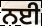
ਨਈ